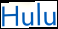
Hulu